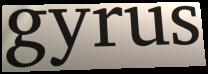
gyrus